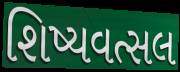
શિષ્યવત્સલ